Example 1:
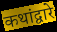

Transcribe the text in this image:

कथांद्वारे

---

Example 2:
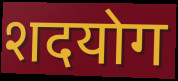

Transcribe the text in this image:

शदयोग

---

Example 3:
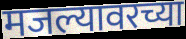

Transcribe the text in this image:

मजल्यावरच्या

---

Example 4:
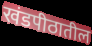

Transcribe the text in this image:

खंडपीठातील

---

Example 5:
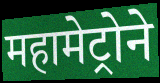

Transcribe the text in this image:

महामेट्रोने